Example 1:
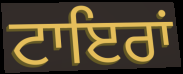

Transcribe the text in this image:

ਟਾਇਰਾਂ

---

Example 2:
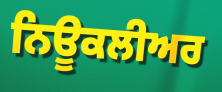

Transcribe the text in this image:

ਨਿਊਕਲੀਅਰ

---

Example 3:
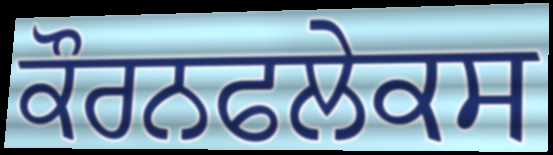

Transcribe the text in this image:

ਕੌਰਨਫਲੇਕਸ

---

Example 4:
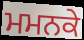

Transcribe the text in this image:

ਮਮਨਕੇ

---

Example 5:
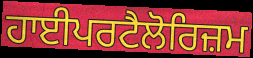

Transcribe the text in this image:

ਹਾਈਪਰਟੈਲੋਰਿਜ਼ਮ